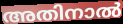
അതിനാൽ